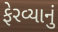
ફેરવ્યાનું